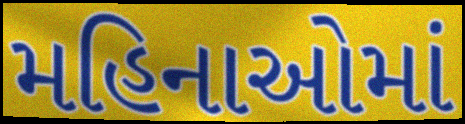
મહિનાઓમાં